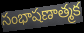
సంభాషణాత్మక